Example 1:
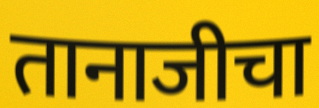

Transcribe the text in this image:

तानाजीचा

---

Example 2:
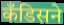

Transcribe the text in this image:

कँडिसने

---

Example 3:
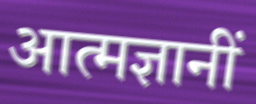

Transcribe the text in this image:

आत्मज्ञानीं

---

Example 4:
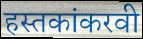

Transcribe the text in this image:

हस्तकांकरवी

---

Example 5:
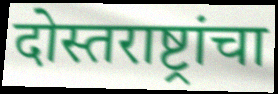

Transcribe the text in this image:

दोस्तराष्ट्रांचा